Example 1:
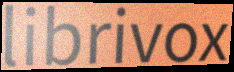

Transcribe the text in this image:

librivox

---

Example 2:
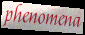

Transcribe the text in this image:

phenomena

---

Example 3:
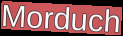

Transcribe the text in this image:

Morduch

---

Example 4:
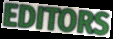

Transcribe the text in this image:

EDITORS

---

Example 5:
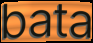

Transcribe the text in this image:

bata